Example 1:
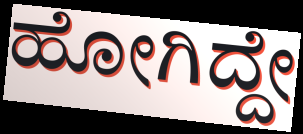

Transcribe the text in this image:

ಹೋಗಿದ್ದೇ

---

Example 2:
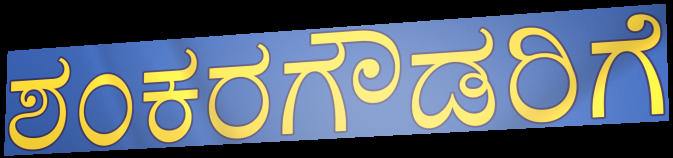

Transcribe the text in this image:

ಶಂಕರಗೌಡರಿಗೆ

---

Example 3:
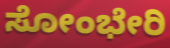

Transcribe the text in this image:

ಸೋಂಭೇರಿ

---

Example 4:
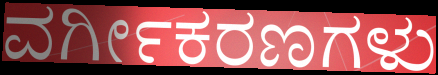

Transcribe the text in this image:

ವರ್ಗೀಕರಣಗಳು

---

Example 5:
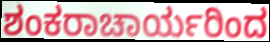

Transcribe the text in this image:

ಶಂಕರಾಚಾರ್ಯರಿಂದ